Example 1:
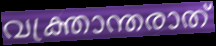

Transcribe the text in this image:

വക്ത്രാന്തരാത്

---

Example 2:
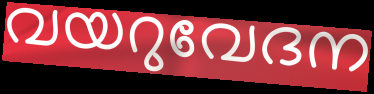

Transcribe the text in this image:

വയറുവേദന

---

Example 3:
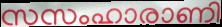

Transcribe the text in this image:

സസംഹാരാണി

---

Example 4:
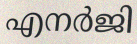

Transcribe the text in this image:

എനർജി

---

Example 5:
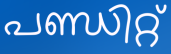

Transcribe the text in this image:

പണ്ഡിറ്റ്